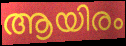
ആയിരം